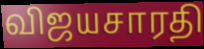
விஜயசாரதி